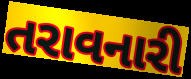
તરાવનારી